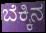
ಬೆಕ್ಕಿನ